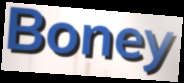
Boney